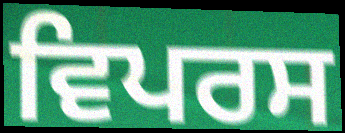
ਵਿਪਰਸ